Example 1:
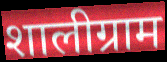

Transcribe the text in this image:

शालीग्राम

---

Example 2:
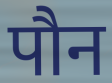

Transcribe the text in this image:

पौन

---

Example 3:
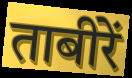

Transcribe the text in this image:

ताबीरें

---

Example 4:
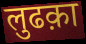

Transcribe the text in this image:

लुढक़ा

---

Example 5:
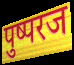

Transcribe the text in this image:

पुष्परज